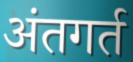
अंतगर्त